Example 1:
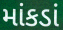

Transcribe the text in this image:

માંકડાં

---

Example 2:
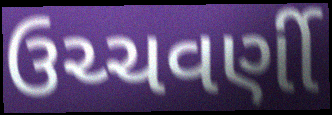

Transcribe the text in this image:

ઉચ્ચવર્ણી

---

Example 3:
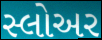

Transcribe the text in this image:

સ્લોઅર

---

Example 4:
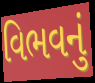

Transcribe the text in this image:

વિભવનું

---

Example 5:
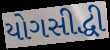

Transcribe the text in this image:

યોગસીદ્ધી